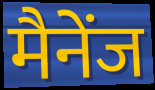
मैनेंज